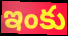
ఇంకు